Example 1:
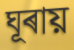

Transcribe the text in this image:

ঘূৰায়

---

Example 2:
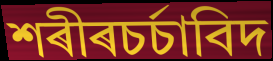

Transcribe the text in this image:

শৰীৰচৰ্চাবিদ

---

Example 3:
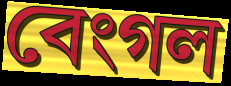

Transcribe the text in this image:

বেংগল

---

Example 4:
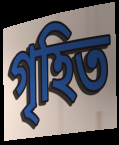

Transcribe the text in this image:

গৃহিত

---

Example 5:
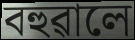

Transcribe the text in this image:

বহুৱালে